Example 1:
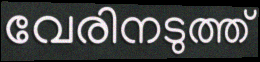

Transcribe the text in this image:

വേരിനടുത്ത്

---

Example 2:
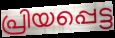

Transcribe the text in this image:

പ്രിയപ്പെട്ട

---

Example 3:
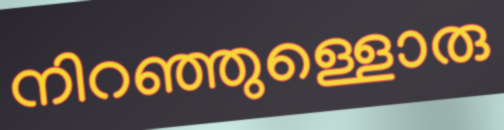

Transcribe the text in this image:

നിറഞ്ഞുള്ളൊരു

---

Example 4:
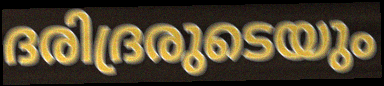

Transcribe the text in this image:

ദരിദ്രരുടെയും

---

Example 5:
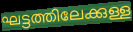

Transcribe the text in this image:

ഘട്ടത്തിലേക്കുള്ള